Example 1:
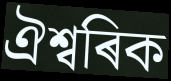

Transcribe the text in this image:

ঐশ্বৰিক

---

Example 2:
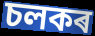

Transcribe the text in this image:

চলকৰ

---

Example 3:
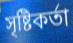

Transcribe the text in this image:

সৃষ্টিকৰ্তা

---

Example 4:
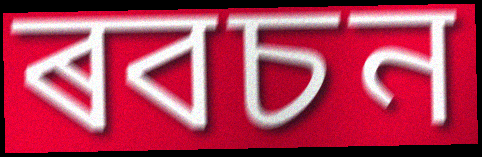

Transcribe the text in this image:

ৰবচন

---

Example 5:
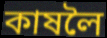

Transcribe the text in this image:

কাষলৈ